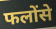
फलोंसे